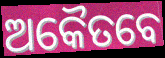
ଅକୈତବେ